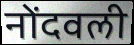
नोंदवली